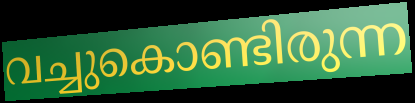
വച്ചുകൊണ്ടിരുന്ന